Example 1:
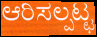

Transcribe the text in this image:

ಆರಿಸಲ್ಪಟ್ಟ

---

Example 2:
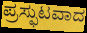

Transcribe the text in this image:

ಪ್ರಸ್ಫುಟವಾದ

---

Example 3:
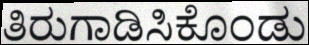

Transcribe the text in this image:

ತಿರುಗಾಡಿಸಿಕೊಂಡು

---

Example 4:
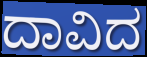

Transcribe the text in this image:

ದಾವಿದ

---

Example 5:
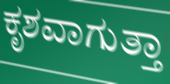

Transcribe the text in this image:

ಕೃಶವಾಗುತ್ತಾ